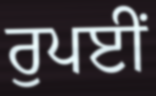
ਰੁਪਈਂ